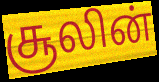
சூலின்